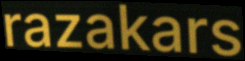
razakars